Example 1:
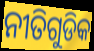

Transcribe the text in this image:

ନୀତିଗୁଡିକ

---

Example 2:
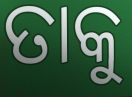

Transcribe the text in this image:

ତାକୁ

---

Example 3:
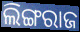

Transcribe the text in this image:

ଲିଙ୍ଗରାଜ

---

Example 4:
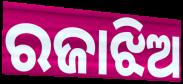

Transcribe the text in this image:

ରଜାଝିଅ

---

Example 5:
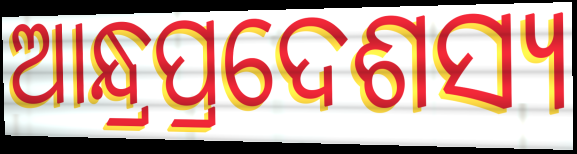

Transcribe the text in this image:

ଆନ୍ଧ୍ରପ୍ରଦେଶସ୍ୟ